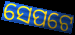
ସେପଟେ